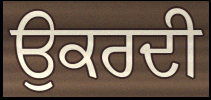
ਉਕਰਦੀ